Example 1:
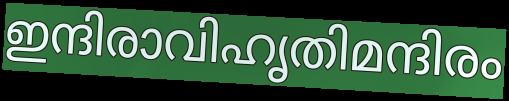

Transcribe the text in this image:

ഇന്ദിരാവിഹൃതിമന്ദിരം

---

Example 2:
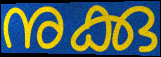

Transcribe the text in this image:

നുക്കു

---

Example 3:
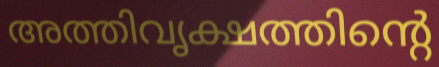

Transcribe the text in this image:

അത്തിവൃക്ഷത്തിന്റെ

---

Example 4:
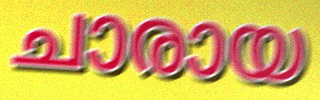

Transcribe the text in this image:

ചാരായ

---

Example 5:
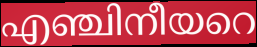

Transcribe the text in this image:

എഞ്ചിനീയറെ